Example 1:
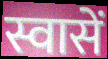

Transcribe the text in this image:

स्वासें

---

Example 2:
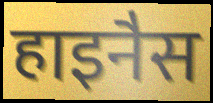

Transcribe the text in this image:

हाइनैस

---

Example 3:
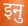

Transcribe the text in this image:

इनु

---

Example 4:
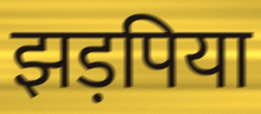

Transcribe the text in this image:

झड़पिया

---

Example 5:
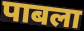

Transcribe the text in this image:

पाबला